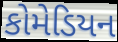
કોમેડિયન